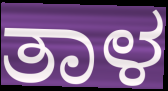
ತಾಳ